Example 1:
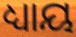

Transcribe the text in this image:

ଧ୍ୟାୟ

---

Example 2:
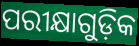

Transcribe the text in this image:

ପରୀକ୍ଷାଗୁଡ଼ିକ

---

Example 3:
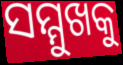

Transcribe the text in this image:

ସମ୍ମୁଖକୁ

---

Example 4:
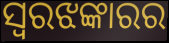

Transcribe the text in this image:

ସ୍ୱରଝଙ୍କାରର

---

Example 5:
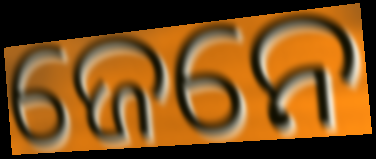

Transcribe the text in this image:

ଜେନେ